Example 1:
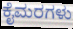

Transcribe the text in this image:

ಕೈಮರಗಳು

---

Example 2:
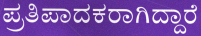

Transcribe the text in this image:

ಪ್ರತಿಪಾದಕರಾಗಿದ್ದಾರೆ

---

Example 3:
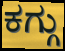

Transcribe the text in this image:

ಕಗ್ಗು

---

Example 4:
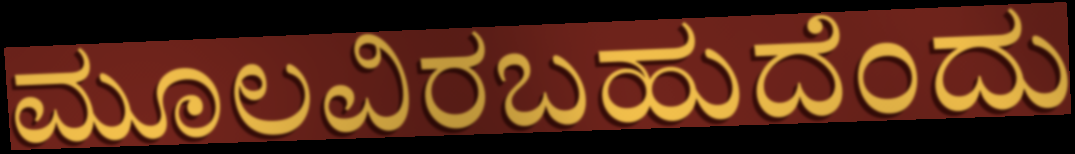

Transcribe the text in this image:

ಮೂಲವಿರಬಹುದೆಂದು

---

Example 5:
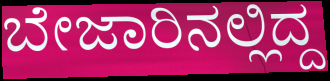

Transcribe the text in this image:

ಬೇಜಾರಿನಲ್ಲಿದ್ದ